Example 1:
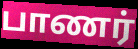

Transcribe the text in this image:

பாணர்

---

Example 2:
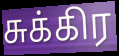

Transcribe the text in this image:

சுக்கிர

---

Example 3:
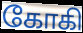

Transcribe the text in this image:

கோகி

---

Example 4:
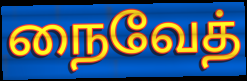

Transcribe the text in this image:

நைவேத்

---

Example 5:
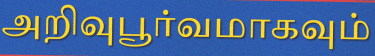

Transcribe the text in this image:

அறிவுபூர்வமாகவும்